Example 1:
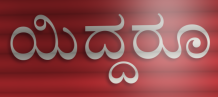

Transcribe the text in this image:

ಯಿದ್ದರೂ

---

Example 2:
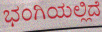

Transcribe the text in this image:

ಭಂಗಿಯಲ್ಲಿದೆ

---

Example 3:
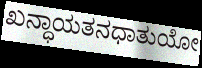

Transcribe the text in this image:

ಖನ್ಧಾಯತನಧಾತುಯೋ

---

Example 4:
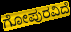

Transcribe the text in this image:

ಗೋಪುರವಿದೆ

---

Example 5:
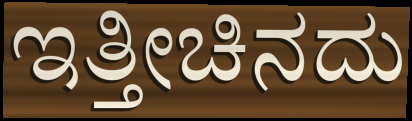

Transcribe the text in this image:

ಇತ್ತೀಚಿನದು